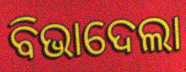
ବିଭାଦେଲା